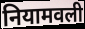
नियामवली